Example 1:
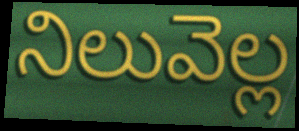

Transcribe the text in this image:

నిలువెల్ల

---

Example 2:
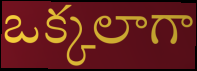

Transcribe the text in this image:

ఒక్కలాగా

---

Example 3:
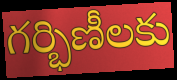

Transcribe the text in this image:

గర్భిణీలకు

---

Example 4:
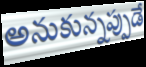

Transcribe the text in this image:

అనుకున్నప్పుడే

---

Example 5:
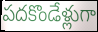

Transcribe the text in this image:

పదకొండేళ్లుగా